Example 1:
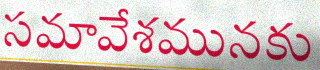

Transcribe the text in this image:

సమావేశమునకు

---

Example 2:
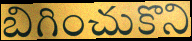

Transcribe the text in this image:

బిగించుకొని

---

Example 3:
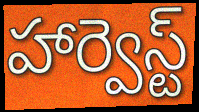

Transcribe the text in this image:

హార్వెస్ట్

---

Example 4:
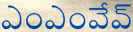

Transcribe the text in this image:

ఎంఎంవేవ్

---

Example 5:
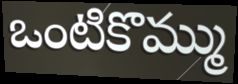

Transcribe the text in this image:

ఒంటికొమ్ము